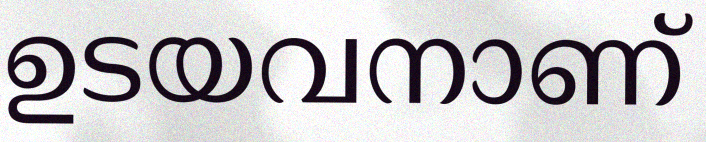
ഉടയവനാണ്